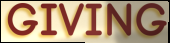
GIVING